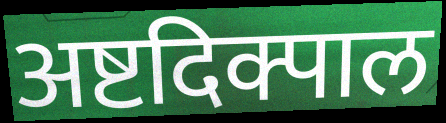
अष्टदिक्पाल